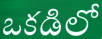
ఒకడిలో